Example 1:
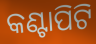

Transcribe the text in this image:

କଣ୍ଟାପିଟି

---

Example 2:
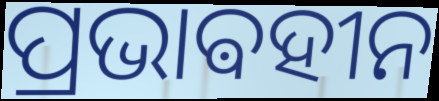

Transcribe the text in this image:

ପ୍ରଭାଵହୀନ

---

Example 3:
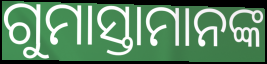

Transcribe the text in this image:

ଗୁମାସ୍ତାମାନଙ୍କ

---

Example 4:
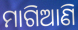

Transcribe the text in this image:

ମାଗିଆଣି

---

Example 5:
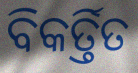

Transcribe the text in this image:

ବିକର୍ତ୍ତିତ